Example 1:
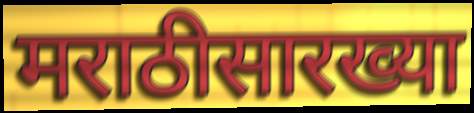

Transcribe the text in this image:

मराठीसारख्या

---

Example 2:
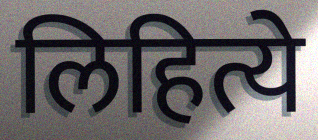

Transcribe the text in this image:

लिहित्ये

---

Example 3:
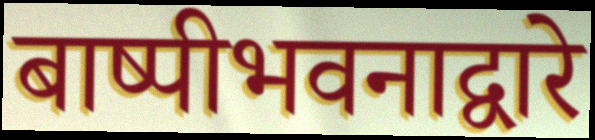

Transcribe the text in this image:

बाष्पीभवनाद्वारे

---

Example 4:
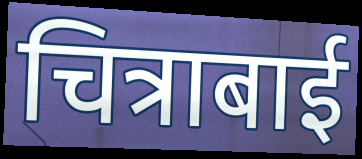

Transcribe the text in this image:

चित्राबाई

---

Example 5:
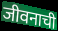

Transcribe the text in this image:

जीवनाची